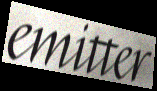
emitter